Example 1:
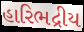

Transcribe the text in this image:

હારિભદ્રીય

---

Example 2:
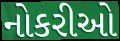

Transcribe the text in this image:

નોકરીઓ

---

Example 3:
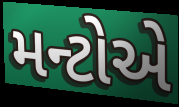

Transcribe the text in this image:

મન્ટોએ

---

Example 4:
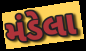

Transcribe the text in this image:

મંડેલા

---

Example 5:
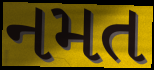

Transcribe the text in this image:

નમત